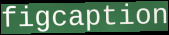
figcaption